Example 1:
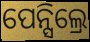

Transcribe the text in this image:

ପେନ୍ସିଲ୍ରେ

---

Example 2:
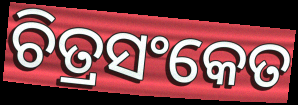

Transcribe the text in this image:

ଚିତ୍ରସଂକେତ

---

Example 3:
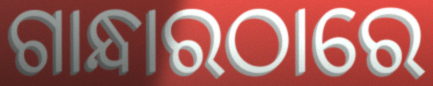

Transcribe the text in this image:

ଗାନ୍ଧାରଠାରେ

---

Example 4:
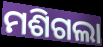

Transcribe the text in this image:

ମଶିଗଲା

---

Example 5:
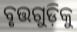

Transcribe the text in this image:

ବୃତ୍ତଗୁଡ଼ିକୁ